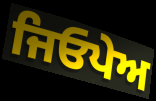
ਜਿਓਪੇਅ